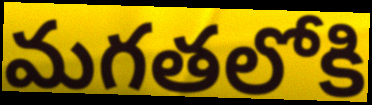
మగతలోకి